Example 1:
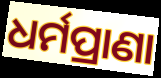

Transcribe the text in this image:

ଧର୍ମପ୍ରାଣା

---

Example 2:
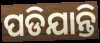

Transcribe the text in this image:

ପଡିଯାନ୍ତି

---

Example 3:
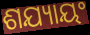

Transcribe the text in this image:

ଶଯ୍ୟାୟଂ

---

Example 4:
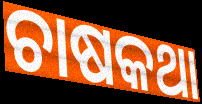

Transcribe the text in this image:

ଚାଷକଥା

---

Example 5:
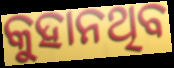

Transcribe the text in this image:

କୁହାନଥିବ